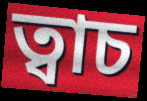
ত্বাচ